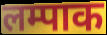
लम्पाक